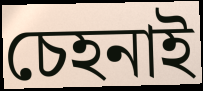
চেহনাই